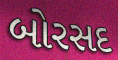
બોરસદ